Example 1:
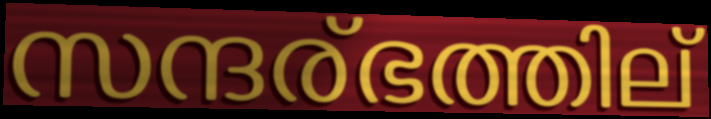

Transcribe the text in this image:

സന്ദര്ഭത്തില്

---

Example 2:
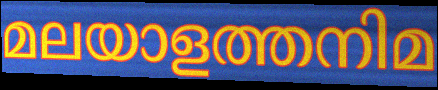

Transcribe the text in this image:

മലയാളത്തനിമ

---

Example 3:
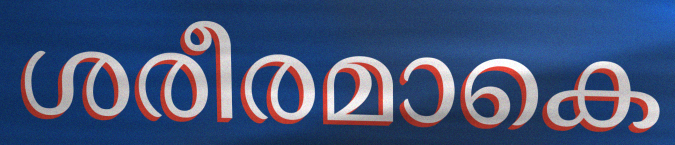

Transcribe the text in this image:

ശരീരമാകെ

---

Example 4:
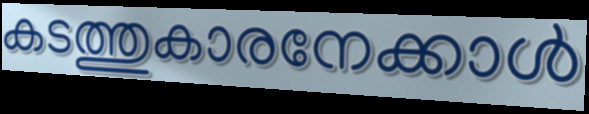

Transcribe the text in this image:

കടത്തുകാരനേക്കാൾ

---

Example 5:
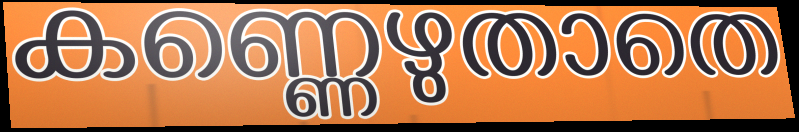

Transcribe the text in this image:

കണ്ണെഴുതാതെ